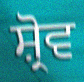
ਸ਼੍ਰੋਵ